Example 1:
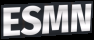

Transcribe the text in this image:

ESMN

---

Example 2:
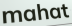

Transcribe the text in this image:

mahat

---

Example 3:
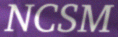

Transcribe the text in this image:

NCSM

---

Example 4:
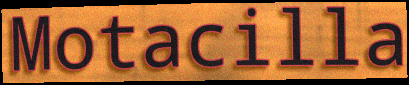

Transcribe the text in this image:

Motacilla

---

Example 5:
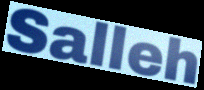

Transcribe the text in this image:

Salleh